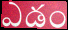
ఎడం